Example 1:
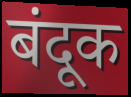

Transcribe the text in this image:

बंदूक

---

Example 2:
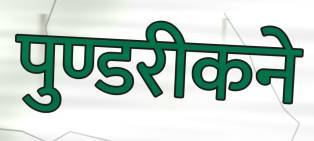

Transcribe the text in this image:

पुण्डरीकने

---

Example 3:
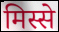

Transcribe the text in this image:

मिस्से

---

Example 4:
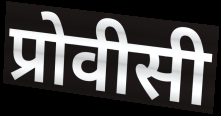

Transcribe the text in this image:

प्रोवीसी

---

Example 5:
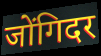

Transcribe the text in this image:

जोंगिदर